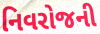
નિવરોજની